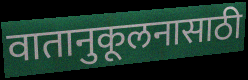
वातानुकूलनासाठी